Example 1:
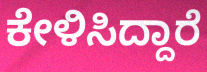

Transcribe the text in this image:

ಕೇಳಿಸಿದ್ದಾರೆ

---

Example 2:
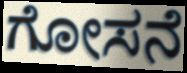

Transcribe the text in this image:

ಗೋಸನೆ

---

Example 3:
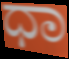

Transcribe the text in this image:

ಧಾ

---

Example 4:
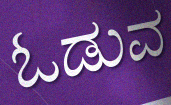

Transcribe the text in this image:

ಓಡುವ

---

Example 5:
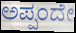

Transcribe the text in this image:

ಅಪ್ಪಂದೇ